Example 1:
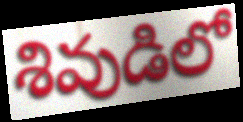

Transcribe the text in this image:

శివుడిలో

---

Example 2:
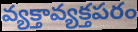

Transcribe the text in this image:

వ్యక్తావ్యక్తపరం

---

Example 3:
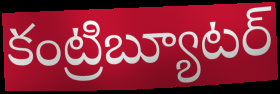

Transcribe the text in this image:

కంట్రిబ్యూటర్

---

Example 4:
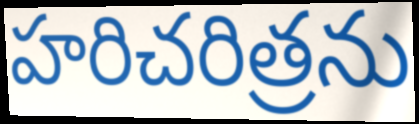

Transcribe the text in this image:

హరిచరిత్రను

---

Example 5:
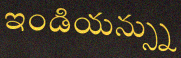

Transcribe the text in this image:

ఇండియన్స్ను